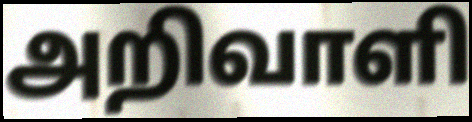
அறிவாளி